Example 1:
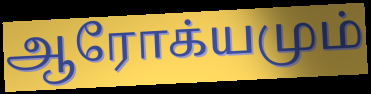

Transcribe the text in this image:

ஆரோக்யமும்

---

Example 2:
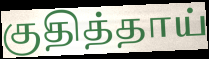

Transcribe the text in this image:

குதித்தாய்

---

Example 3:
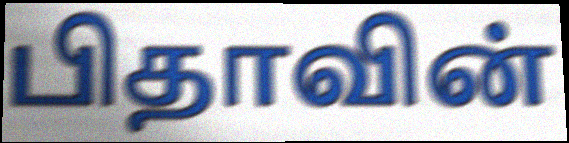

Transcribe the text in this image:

பிதாவின்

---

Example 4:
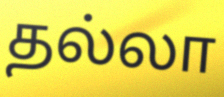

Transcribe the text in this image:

தல்லா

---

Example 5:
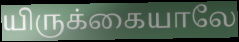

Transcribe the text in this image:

யிருக்கையாலே